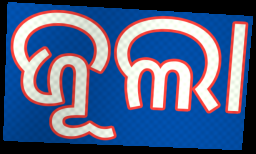
ଜୂଲା